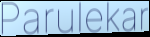
Parulekar